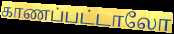
காணப்பட்டாலோ